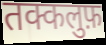
तक्कलुफ़